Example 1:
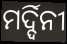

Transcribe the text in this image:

ମର୍ଦ୍ଦିନୀ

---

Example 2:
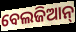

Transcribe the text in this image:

ବେଲଜିଆନ୍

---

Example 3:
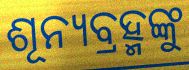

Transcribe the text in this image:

ଶୂନ୍ୟବ୍ରହ୍ମଙ୍କୁ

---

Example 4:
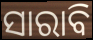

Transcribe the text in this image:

ସାରାବି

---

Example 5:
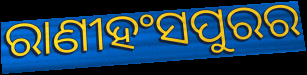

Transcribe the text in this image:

ରାଣୀହଂସପୁରର